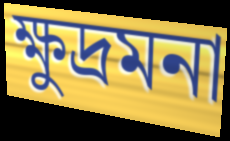
ক্ষুদ্রমনা